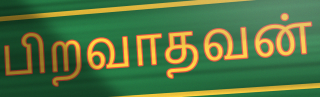
பிறவாதவன்